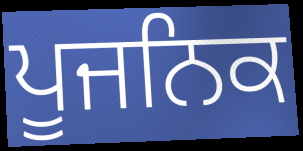
ਪੂਜਨਿਕ